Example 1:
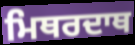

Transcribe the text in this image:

ਮਿਥਰਦਾਥ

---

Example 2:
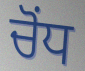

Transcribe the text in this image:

ਚੋਂਧ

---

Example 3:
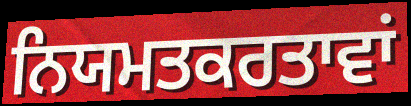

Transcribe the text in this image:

ਨਿਯਮਤਕਰਤਾਵਾਂ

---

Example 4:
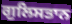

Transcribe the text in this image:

ਗੁਲਿਸਤਾਨ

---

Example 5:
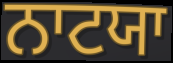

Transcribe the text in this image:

ਨਾਟਯਾ